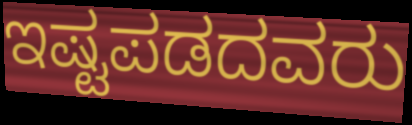
ಇಷ್ಟಪಡದವರು